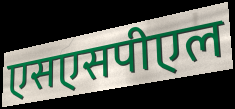
एसएसपीएल